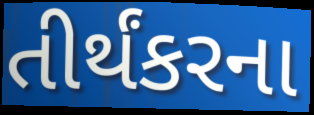
તીર્થંકરના